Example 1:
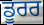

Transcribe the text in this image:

ਡੂਰਰ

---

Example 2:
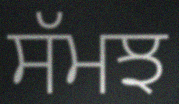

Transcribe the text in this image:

ਸੱਮਝ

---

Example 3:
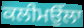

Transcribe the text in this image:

ਕਲੀਮਉੱਲਾ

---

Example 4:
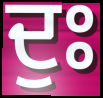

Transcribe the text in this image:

ਦੁਃ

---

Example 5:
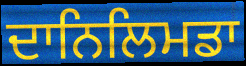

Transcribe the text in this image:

ਦਾਨਿਲਿਮਡਾ